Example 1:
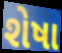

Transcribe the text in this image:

શેષા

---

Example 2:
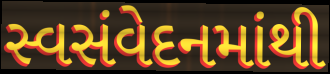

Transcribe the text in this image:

સ્વસંવેદનમાંથી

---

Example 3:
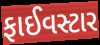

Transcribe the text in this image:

ફાઈવસ્ટાર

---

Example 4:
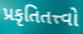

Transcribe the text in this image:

પ્રકૃતિતત્ત્વો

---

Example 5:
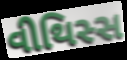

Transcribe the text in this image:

વીથિસ્સ